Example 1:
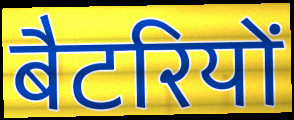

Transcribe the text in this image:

बैटरियों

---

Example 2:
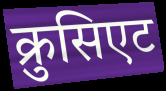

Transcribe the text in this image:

क्रुसिएट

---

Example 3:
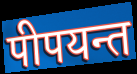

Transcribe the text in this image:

पीपयन्त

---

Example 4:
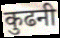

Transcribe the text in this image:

कुढनी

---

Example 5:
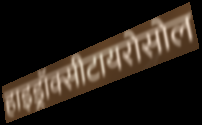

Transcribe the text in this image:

हाइड्रॉक्सीटायरोसोल